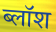
ब्लॉश